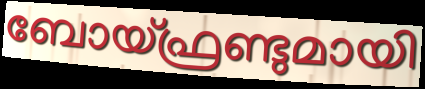
ബോയ്ഫ്രണ്ടുമായി